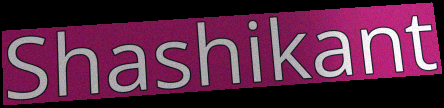
Shashikant